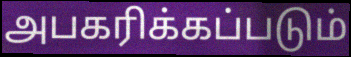
அபகரிக்கப்படும்